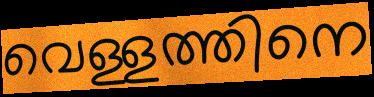
വെള്ളത്തിനെ